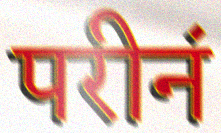
परीनं